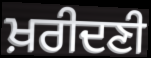
ਖ਼ਰੀਦਣੀ